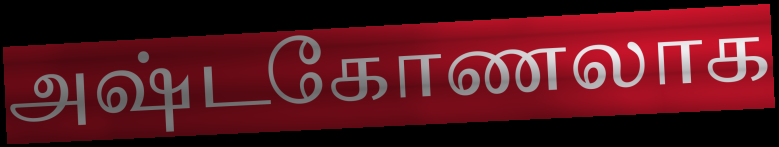
அஷ்டகோணலாக